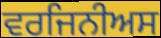
ਵਰਜਿਨੀਅਸ